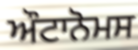
ਔਟਾਨੋਮਸ